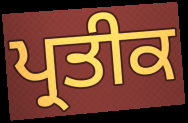
ਪ੍ਰਤੀਕ